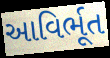
આવિર્ભૂત